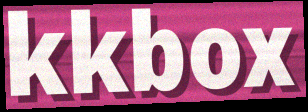
kkbox